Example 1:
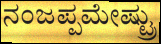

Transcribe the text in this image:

ನಂಜಪ್ಪಮೇಷ್ಟ್ರು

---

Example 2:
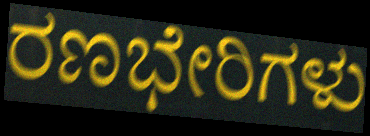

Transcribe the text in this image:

ರಣಭೇರಿಗಳು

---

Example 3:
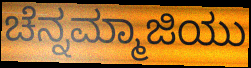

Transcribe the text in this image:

ಚೆನ್ನಮ್ಮಾಜಿಯು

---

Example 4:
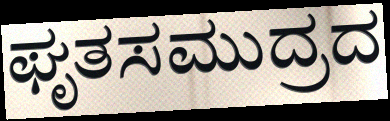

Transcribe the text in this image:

ಘೃತಸಮುದ್ರದ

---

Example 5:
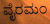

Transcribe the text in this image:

ವೈರಮಂ